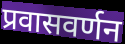
प्रवासवर्णन